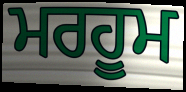
ਮਰਹੂਮ